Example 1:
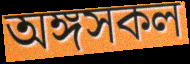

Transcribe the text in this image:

অঙ্গসকল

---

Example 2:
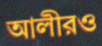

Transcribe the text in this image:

আলীরও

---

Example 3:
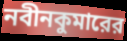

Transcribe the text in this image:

নবীনকুমারের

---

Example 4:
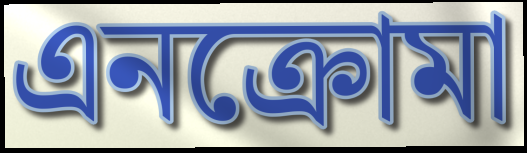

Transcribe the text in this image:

এনক্রোমা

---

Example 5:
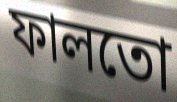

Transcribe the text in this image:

ফালতো